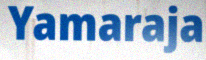
Yamaraja